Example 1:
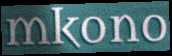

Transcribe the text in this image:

mkono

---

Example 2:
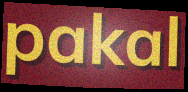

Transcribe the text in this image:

pakal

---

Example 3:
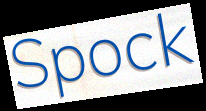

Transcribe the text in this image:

Spock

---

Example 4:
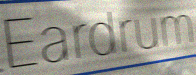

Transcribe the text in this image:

Eardrum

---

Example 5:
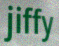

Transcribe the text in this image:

jiffy